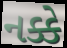
નક્કે